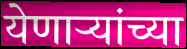
येणाऱ्यांच्या